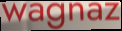
wagnaz